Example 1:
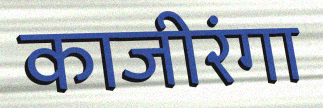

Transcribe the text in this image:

काजीरंगा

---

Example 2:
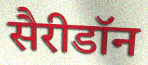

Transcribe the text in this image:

सैरीडॉन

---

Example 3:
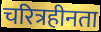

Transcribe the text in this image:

चरित्रहीनता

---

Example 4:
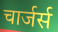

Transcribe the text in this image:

चार्जर्स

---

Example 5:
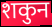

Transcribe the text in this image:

शकुन